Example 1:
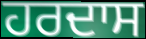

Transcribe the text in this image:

ਹਰਦਾਸ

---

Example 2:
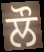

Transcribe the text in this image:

ਲੌ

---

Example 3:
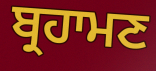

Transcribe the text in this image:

ਬ੍ਰਹਾਮਣ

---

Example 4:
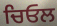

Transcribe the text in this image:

ਚਿਓਲ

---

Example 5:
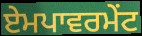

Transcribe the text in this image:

ਏਮਪਾਵਰਮੇਂਟ